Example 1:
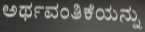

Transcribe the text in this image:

ಅರ್ಥವಂತಿಕೆಯನ್ನು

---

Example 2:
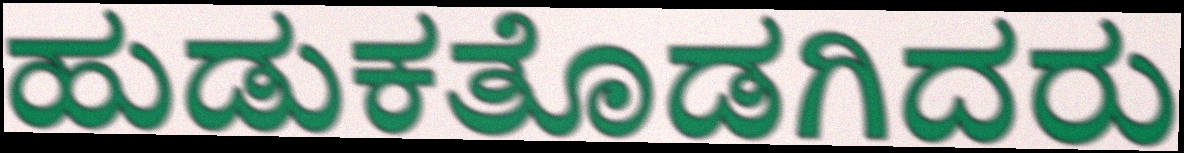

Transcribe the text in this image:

ಹುಡುಕತೊಡಗಿದರು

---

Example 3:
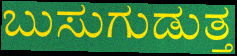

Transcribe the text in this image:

ಬುಸುಗುಡುತ್ತ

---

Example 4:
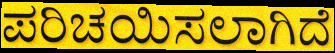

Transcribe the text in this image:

ಪರಿಚಯಿಸಲಾಗಿದೆ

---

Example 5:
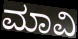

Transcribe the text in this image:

ಮಾವಿ